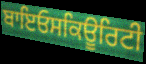
ਬਾਇਓਸਕਿਊਰਿਟੀ